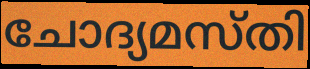
ചോദ്യമസ്തി